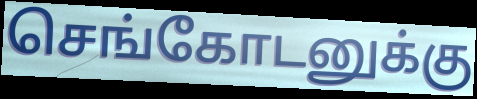
செங்கோடனுக்கு